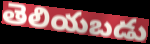
తెలియబడు